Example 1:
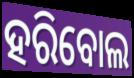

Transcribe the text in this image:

ହରିବୋଲ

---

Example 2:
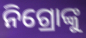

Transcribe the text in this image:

ନିଗ୍ରୋଙ୍କୁ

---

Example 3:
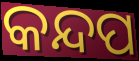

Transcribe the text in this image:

କନ୍ଦପ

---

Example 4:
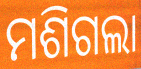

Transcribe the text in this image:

ମଶିଗଲା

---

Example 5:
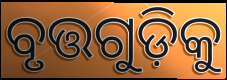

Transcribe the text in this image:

ବୃତ୍ତଗୁଡ଼ିକୁ